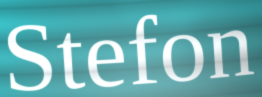
Stefon